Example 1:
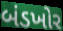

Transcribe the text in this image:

બંડખોર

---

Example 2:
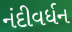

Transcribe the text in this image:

નંદીવર્ધન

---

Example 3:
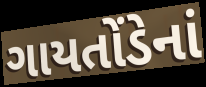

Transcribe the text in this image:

ગાયતોંડેનાં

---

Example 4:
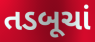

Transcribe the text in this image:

તડબૂચાં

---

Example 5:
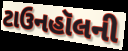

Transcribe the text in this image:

ટાઉનહૉલની